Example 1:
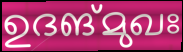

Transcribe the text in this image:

ഉദങ്മുഖഃ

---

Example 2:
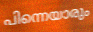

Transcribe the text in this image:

പിന്നെയാരും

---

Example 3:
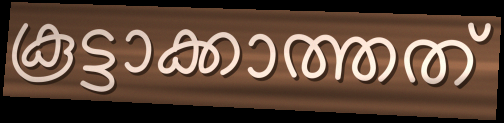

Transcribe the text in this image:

കൂട്ടാക്കാത്തത്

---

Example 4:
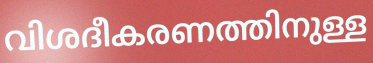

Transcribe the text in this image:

വിശദീകരണത്തിനുള്ള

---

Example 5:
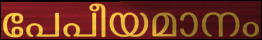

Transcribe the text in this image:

പേപീയമാനം